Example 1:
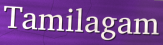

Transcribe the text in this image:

Tamilagam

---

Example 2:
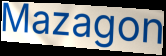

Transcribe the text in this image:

Mazagon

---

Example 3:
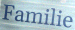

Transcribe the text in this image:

Familie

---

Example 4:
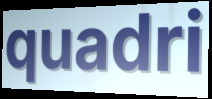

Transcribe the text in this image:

quadri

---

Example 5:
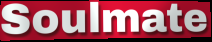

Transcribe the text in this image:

Soulmate